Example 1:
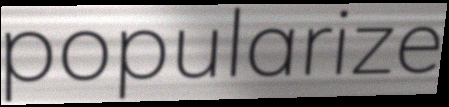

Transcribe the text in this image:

popularize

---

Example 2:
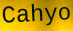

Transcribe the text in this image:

Cahyo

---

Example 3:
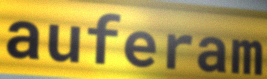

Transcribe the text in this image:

auferam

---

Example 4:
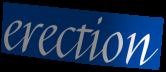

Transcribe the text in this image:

erection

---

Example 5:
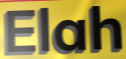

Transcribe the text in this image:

Elah